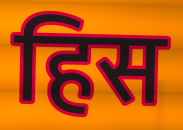
हिस